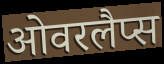
ओवरलैप्स